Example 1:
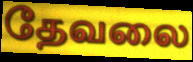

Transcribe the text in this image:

தேவலை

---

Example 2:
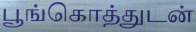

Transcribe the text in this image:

பூங்கொத்துடன்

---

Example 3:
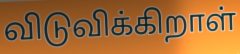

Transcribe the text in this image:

விடுவிக்கிறாள்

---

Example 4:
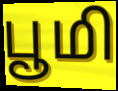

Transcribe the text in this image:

பூமி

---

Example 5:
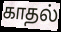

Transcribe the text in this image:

காதல்